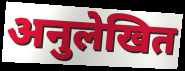
अनुलेखित